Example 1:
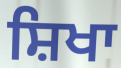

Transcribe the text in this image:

ਸ਼ਿਖਾ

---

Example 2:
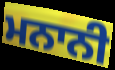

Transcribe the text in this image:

ਮਨਾਨੀ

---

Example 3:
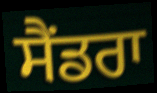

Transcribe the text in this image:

ਸੈਂਡਰਾ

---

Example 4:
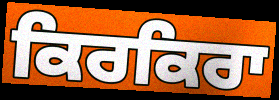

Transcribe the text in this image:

ਕਿਰਕਿਰਾ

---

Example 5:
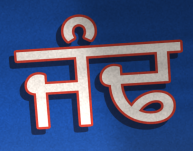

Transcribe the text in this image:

ਜੰਢ